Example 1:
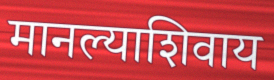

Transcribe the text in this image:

मानल्याशिवाय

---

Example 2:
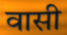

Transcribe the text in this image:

वासी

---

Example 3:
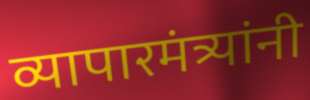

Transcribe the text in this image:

व्यापारमंत्र्यांनी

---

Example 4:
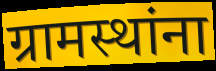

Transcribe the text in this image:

ग्रामस्थांना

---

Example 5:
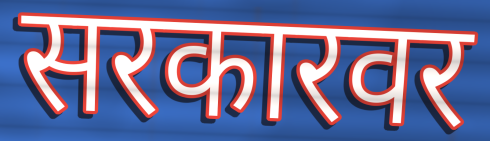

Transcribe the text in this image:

सरकारवर